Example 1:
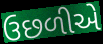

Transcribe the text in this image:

ઉછળીએ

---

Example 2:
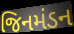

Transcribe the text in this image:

જિનમંડન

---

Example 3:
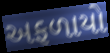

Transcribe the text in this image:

અફળાયો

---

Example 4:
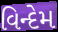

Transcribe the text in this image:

વિન્દેમ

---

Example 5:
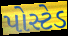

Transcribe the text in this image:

પોસ્ટેડ